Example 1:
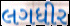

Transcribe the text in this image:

લગધીર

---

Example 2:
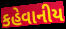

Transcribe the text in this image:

કહેવાનીય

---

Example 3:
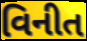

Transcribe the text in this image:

વિનીત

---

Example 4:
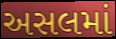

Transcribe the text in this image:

અસલમાં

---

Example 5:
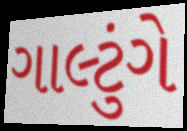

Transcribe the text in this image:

ગાલ્ટુંગે